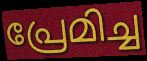
പ്രേമിച്ച